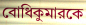
বোধিকুমারকে